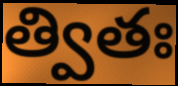
త్వితః